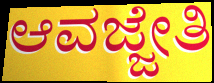
ಆವಜ್ಜೇತಿ